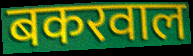
बकरवाल